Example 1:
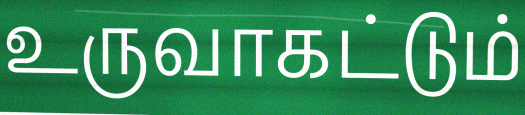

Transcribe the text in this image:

உருவாகட்டும்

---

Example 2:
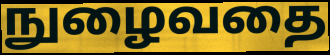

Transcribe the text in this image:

நுழைவதை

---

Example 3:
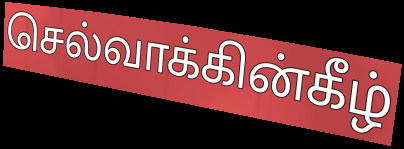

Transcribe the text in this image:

செல்வாக்கின்கீழ்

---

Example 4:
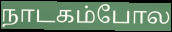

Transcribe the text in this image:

நாடகம்போல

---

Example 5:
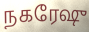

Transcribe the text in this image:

நகரேஷு